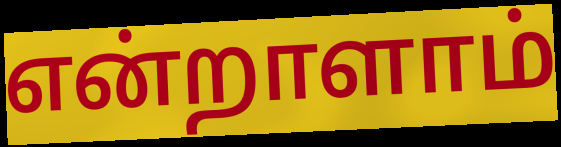
என்றாளாம்